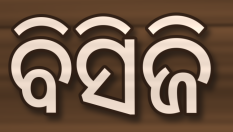
ବିସିଜି